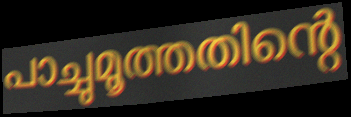
പാച്ചുമൂത്തതിന്റെ